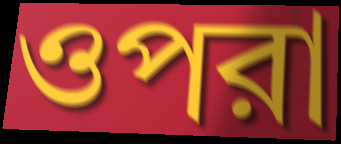
ওপরা